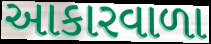
આકારવાળા